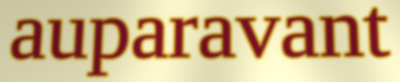
auparavant